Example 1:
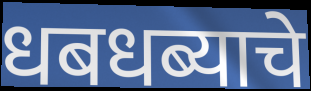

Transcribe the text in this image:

धबधब्याचे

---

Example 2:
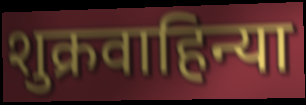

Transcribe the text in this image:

शुक्रवाहिन्या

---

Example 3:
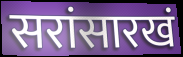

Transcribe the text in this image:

सरांसारखं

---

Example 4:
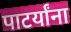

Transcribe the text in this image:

पाटर्यांना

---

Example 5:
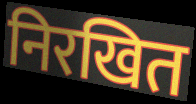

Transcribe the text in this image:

निरखित